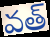
వత్